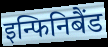
इन्फिनिबैंड